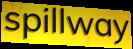
spillway